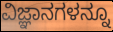
ವಿಜ್ಞಾನಗಳನ್ನೂ